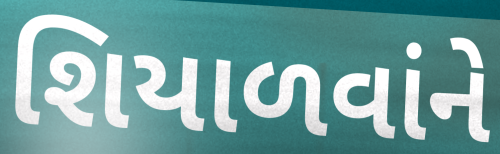
શિયાળવાંને